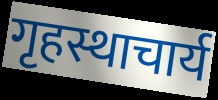
गृहस्थाचार्य